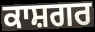
ਕਾਸ਼ਗਰ